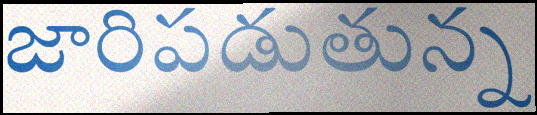
జారిపడుతున్న